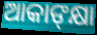
ଆକାଙ୍‍କ୍ଷା